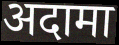
अदामा